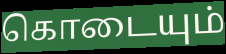
கொடையும்